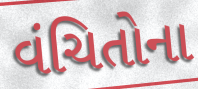
વંચિતોના